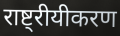
राष्ट्रीयीकरण